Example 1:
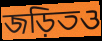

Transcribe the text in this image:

জড়িতও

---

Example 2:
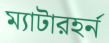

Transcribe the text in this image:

ম্যাটারহর্ন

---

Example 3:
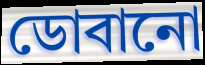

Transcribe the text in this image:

ডোবানো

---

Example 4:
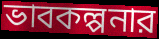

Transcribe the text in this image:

ভাবকল্পনার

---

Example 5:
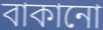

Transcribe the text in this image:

বাকানো